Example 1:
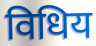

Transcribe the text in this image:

विधिय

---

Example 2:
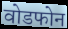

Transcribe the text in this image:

वोडफोन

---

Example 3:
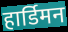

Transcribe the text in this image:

हार्डिमन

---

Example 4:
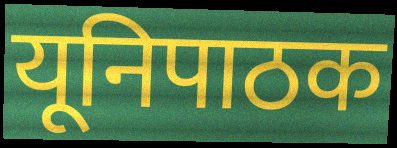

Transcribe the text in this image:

यूनिपाठक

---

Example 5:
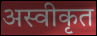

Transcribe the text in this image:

अस्‍वीकृत